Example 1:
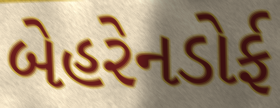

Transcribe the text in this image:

બેહરેનડોર્ફ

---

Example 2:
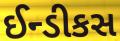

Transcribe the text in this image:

ઈન્ડીકસ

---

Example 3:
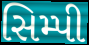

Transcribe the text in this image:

સિમ્પી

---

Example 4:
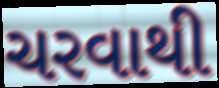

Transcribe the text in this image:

ચરવાથી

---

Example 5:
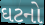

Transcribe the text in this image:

ઘટનો